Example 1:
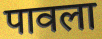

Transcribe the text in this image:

पावला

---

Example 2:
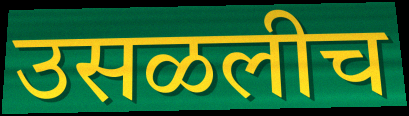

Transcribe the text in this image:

उसळलीच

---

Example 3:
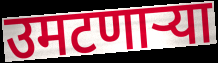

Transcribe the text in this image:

उमटणाऱ्या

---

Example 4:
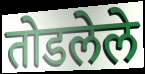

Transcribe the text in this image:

तोडलेले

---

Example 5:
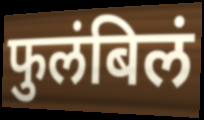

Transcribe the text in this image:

फुलंबिलं